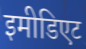
इमीडिएट